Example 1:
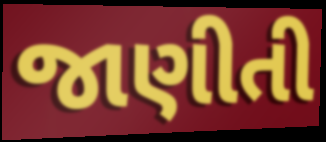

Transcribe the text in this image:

જાણીતી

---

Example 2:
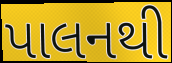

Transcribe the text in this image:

પાલનથી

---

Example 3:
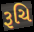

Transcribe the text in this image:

રૂચિ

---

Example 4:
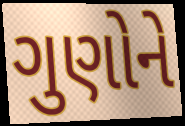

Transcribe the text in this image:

ગુણોને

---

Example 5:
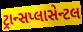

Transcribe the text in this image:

ટ્રાન્સપ્લાસેન્ટલ